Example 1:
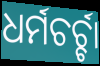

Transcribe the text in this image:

ଧର୍ମଚର୍ଚ୍ଚା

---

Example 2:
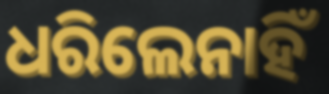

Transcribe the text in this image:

ଧରିଲେନାହିଁ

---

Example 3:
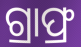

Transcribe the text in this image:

ଗ୍ରାଫ୍ର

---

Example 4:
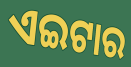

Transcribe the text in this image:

ଏଇଟାର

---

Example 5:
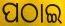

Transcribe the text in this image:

ପଠାଇ